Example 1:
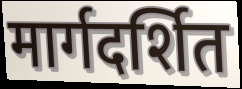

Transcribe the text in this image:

मार्गदर्शित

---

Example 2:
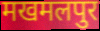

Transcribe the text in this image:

मखमलपुर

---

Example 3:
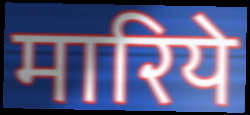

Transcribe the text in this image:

मारिये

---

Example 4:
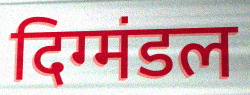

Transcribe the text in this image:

दिग्मंडल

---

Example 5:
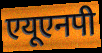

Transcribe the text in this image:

एयूएनपी